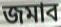
জমাব